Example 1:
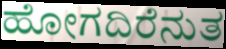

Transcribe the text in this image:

ಹೋಗದಿರೆನುತ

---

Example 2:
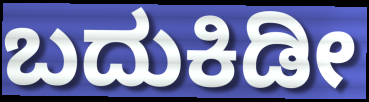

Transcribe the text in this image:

ಬದುಕಿಡೀ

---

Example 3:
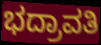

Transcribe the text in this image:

ಭದ್ರಾವತಿ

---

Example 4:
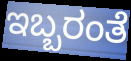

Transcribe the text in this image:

ಇಬ್ಬರಂತೆ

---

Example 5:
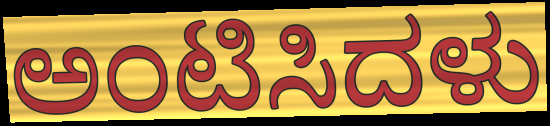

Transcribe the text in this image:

ಅಂಟಿಸಿದಳು